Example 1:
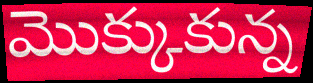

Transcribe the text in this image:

మొక్కుకున్న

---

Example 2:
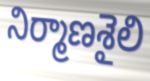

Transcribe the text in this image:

నిర్మాణశైలి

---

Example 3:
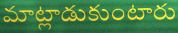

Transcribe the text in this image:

మాట్లాడుకుంటారు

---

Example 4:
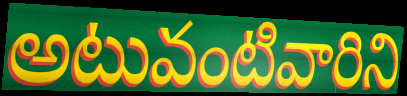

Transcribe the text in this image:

అటువంటివారిని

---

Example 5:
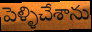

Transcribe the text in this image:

పెళ్ళిచేశాను